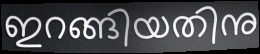
ഇറങ്ങിയതിനു